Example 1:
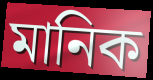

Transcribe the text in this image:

মানিক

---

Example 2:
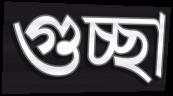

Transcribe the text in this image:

গুচ্ছা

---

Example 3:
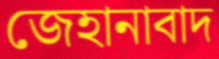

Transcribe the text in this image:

জেহানাবাদ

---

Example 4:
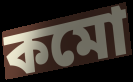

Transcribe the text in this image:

কমো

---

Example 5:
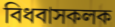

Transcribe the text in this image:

বিধবাসকলক